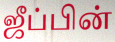
ஜீப்பின்